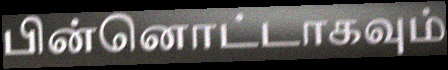
பின்னொட்டாகவும்